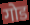
गोड